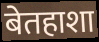
बेतहाशा